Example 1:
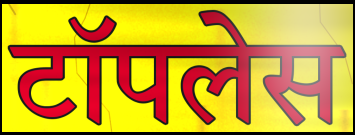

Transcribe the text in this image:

टॉपलेस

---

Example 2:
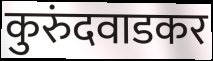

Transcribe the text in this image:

कुरुंदवाडकर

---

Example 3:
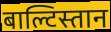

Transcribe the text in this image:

बाल्टिस्तान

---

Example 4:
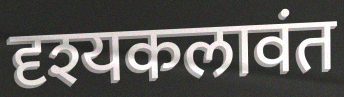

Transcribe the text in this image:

दृश्यकलावंत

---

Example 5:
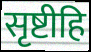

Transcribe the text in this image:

सृष्टीहि